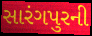
સારંગપુરની